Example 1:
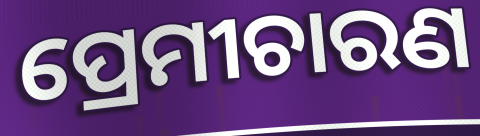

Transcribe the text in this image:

ପ୍ରେମୀଚାରଣ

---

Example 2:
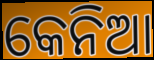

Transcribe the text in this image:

କେନିଆ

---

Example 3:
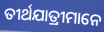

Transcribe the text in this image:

ତୀର୍ଥଯାତ୍ରୀମାନେ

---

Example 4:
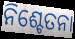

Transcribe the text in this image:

ନିଶ୍ଚେତନା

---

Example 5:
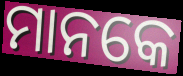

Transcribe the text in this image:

ମାନକେ